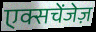
एक्सचेंजेज़